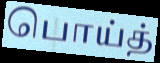
பொய்த்